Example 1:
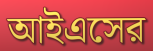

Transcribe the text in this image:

আইএসের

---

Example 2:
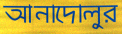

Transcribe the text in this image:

আনাদোলুর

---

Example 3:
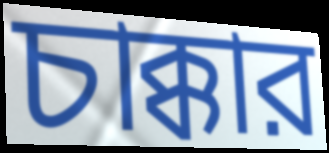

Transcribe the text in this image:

চাক্কার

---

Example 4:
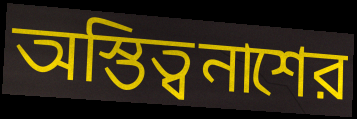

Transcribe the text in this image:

অস্তিত্বনাশের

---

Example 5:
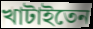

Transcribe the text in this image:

খাটাইতেন